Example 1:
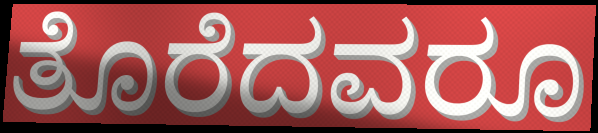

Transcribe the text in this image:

ತೊರೆದವರೂ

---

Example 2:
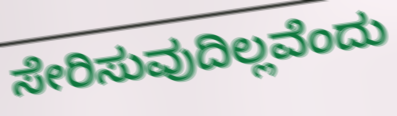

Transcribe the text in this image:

ಸೇರಿಸುವುದಿಲ್ಲವೆಂದು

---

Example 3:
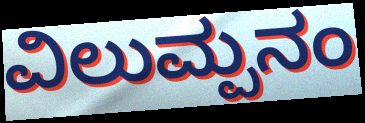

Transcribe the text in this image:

ವಿಲುಮ್ಪನಂ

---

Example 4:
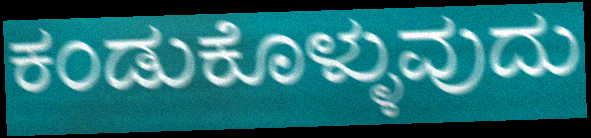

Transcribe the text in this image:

ಕಂಡುಕೊಳ್ಳುವುದು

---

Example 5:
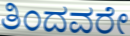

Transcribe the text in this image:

ತಿಂದವರೇ